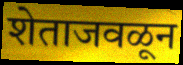
शेताजवळून